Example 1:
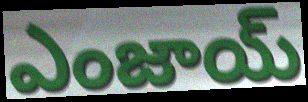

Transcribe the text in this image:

ఎంజాయ్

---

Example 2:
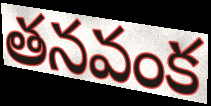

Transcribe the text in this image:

తనవంక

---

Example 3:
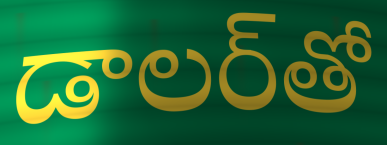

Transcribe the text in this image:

డాలర్‌తో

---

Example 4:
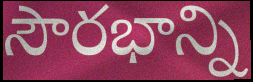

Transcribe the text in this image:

సౌరభాన్ని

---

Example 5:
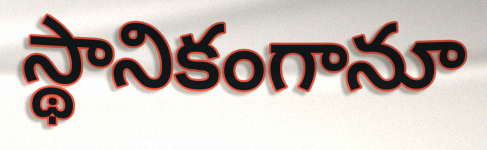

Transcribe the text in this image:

స్థానికంగానూ